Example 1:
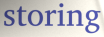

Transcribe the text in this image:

storing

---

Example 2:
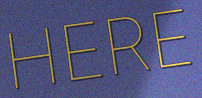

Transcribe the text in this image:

HERE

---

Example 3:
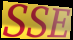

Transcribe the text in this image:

SSE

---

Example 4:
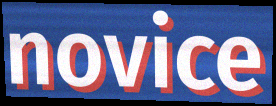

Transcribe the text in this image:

novice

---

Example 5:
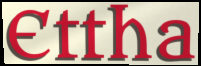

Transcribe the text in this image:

Ettha